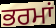
ਭਰਮਾਂ